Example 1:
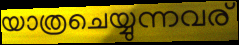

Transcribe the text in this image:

യാത്രചെയ്യുന്നവര്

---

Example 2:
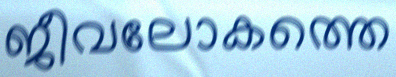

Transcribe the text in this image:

ജീവലോകത്തെ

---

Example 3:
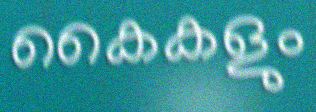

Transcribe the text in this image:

കൈകളും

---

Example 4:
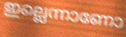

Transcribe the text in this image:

ഇല്ലെന്നാണോ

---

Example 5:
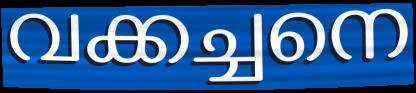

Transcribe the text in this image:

വക്കച്ചനെ